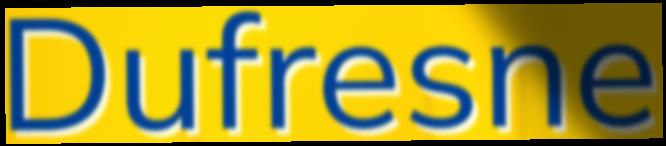
Dufresne